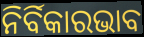
ନିର୍ବିକାରଭାବ